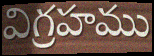
విగ్రహము